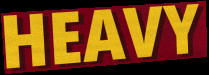
HEAVY